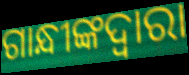
ଗାନ୍ଧୀଙ୍କଦ୍ଵାରା